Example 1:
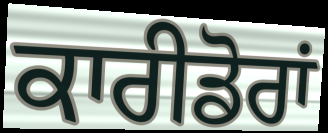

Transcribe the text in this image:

ਕਾਰੀਡੋਰਾਂ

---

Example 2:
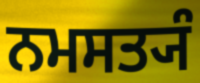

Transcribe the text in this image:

ਨਮਸਤ੍ਯੰ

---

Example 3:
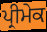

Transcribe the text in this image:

ਪ੍ਰੀਮੇਕ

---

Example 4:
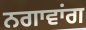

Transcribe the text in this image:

ਨਗਾਵਾਂਗ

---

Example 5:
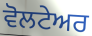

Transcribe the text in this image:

ਵੋਲਟੇਅਰ